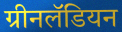
ग्रीनलॅंडियन